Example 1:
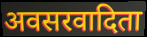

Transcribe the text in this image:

अवसरवादिता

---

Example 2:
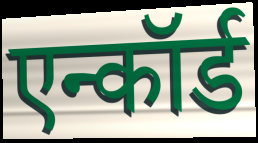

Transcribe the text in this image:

एन्कॉर्ड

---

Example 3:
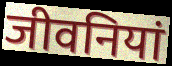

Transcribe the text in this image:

जीवनियां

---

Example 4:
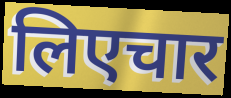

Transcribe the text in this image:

लिएचार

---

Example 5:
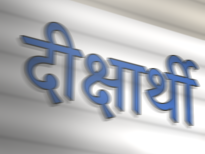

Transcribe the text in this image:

दीक्षार्थी